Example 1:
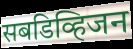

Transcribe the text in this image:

सबडिव्हिजन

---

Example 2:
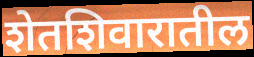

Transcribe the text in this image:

शेतशिवारातील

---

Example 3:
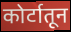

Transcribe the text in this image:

कोर्टातून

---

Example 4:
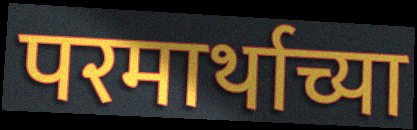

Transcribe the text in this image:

परमार्थाच्या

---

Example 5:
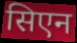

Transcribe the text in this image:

सिएन